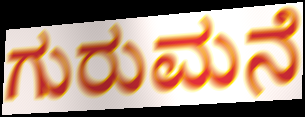
ಗುರುಮನೆ